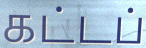
கட்டப்